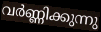
വർണ്ണിക്കുന്നു